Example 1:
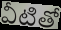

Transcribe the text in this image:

వీటితో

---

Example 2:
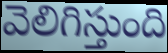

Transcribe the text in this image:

వెలిగిస్తుంది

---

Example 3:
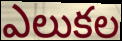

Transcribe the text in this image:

ఎలుకల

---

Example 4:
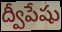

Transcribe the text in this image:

ద్వీపేషు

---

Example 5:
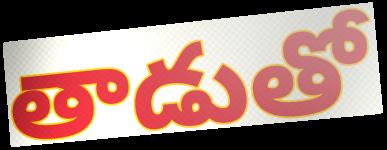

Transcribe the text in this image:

తాడుతో